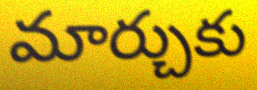
మార్చుకు